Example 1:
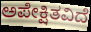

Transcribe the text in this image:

ಅಪೇಕ್ಷಿತವಿದೆ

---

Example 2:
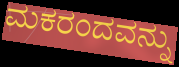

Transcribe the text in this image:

ಮಕರಂದವನ್ನು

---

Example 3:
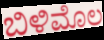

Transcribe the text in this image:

ಬಿಳಿಮೊಲ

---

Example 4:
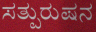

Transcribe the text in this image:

ಸತ್ಪುರುಷನ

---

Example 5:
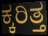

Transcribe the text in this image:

ಕ್ಕರಿತ್ತ